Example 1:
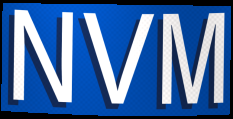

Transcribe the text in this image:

NVM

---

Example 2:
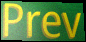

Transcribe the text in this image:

Prev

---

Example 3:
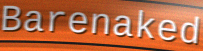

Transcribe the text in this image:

Barenaked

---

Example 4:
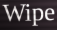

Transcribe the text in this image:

Wipe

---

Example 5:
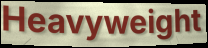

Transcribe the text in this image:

Heavyweight